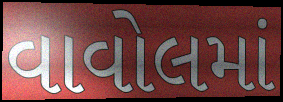
વાવોલમાં